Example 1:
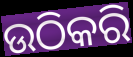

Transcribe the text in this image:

ଉଠିକରି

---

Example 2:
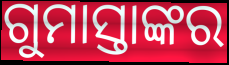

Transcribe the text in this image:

ଗୁମାସ୍ତାଙ୍କର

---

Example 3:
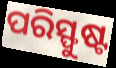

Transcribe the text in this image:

ପରିସ୍ଫୁଷ୍ଟ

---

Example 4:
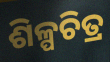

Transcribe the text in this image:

ଶିଳ୍ପଚିତ୍ର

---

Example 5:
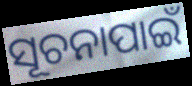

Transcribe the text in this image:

ସୂଚନାପାଇଁ